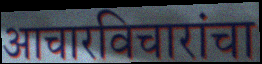
आचारविचारांचा